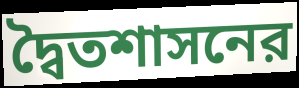
দ্বৈতশাসনের